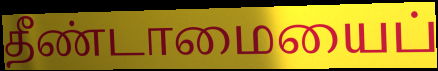
தீண்டாமையைப்